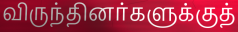
விருந்தினர்களுக்குத்